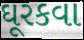
ઘૂરકવા